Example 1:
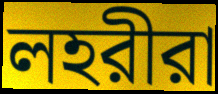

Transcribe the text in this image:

লহরীরা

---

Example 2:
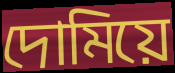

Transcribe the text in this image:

দোমিয়ে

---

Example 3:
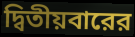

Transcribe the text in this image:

দ্বিতীয়বারের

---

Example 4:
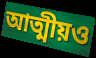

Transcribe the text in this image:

আত্মীয়ও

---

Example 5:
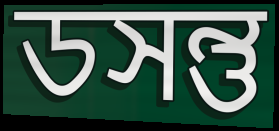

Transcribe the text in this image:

ডসন্তু